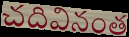
చదివినంత